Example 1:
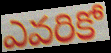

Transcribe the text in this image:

ఎవరికో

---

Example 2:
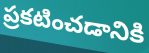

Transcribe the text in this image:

ప్రకటించడానికి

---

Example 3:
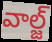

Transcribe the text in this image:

వాల్జ్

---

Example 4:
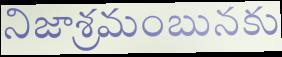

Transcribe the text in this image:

నిజాశ్రమంబునకు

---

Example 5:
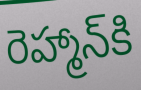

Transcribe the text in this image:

రెహ్మాన్‌కి